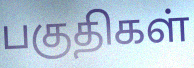
பகுதிகள்